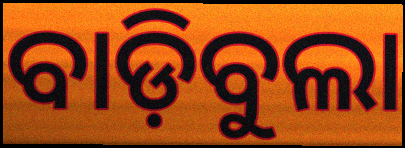
ବାଡ଼ିବୁଲା